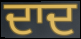
ਦਾਦ